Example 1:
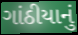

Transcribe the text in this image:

ગાંઠીયાનું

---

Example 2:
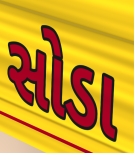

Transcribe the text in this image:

સોડા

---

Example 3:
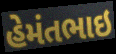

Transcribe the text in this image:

હેમંતભાઇ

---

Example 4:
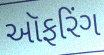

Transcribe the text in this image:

ઑફરિંગ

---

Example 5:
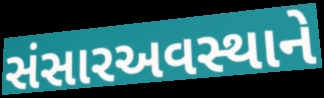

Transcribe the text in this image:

સંસારઅવસ્થાને